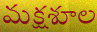
మక్షశూల